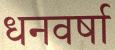
धनवर्षा